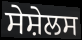
ਸੇਸ਼ੇਲਸ